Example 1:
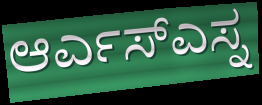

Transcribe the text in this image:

ಆರ್ಎಸ್ಎಸ್ನ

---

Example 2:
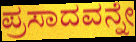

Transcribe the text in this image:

ಪ್ರಸಾದವನ್ನೇ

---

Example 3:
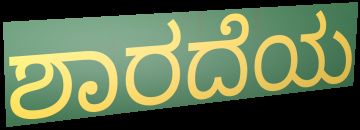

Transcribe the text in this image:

ಶಾರದೆಯ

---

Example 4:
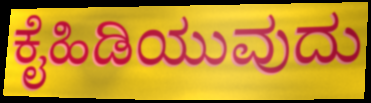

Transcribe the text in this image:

ಕೈಹಿಡಿಯುವುದು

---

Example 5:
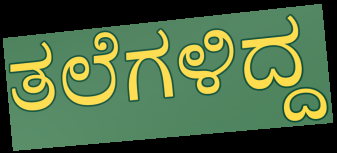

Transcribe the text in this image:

ತಲೆಗಳಿದ್ದ